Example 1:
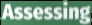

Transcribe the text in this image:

Assessing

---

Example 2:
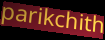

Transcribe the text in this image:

parikchith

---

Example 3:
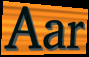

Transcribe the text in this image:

Aar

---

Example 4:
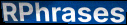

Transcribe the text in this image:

RPhrases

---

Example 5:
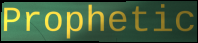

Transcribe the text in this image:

Prophetic